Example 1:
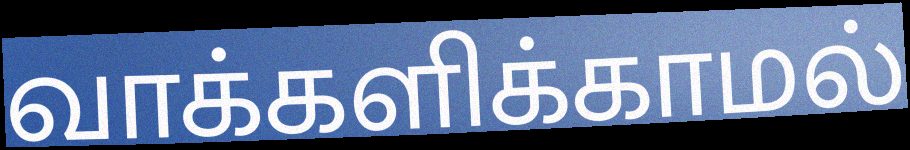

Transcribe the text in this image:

வாக்களிக்காமல்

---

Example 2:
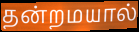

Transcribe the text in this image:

தன்றமயால்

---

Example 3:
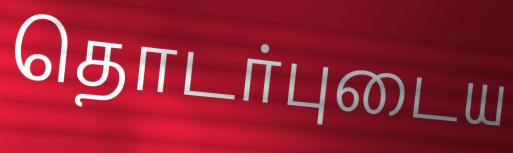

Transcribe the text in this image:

தொடர்புடைய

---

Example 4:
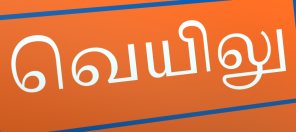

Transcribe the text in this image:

வெயிலு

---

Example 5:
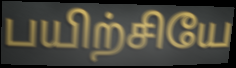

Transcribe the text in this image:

பயிற்சியே